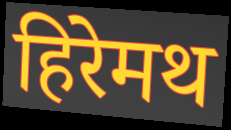
हिरेमथ